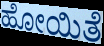
ಹೋಯಿತೆ